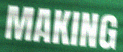
MAKING